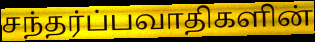
சந்தர்ப்பவாதிகளின்